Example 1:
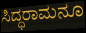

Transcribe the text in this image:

ಸಿದ್ಧರಾಮನೂ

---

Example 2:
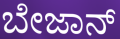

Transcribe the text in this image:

ಬೇಜಾನ್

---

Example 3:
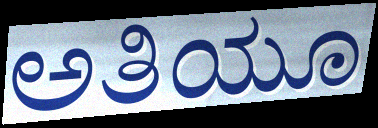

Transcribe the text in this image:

ಅತಿಯೂ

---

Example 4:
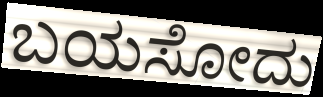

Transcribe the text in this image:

ಬಯಸೋದು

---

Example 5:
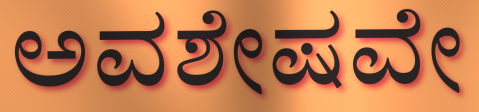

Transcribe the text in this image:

ಅವಶೇಷವೇ